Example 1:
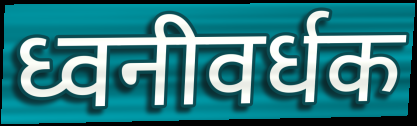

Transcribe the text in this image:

ध्वनीवर्धक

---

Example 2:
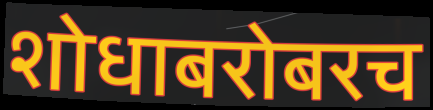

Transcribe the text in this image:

शोधाबरोबरच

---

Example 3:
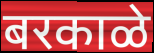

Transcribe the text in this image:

बरकाळे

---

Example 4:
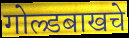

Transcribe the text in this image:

गोल्डबाखचे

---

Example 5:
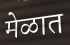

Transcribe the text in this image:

मेळात